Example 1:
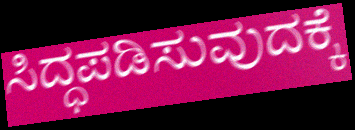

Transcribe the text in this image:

ಸಿದ್ಧಪಡಿಸುವುದಕ್ಕೆ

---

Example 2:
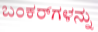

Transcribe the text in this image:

ಬಂಕರ್‌ಗಳನ್ನು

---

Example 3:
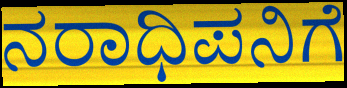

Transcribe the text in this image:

ನರಾಧಿಪನಿಗೆ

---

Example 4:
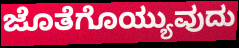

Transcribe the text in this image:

ಜೊತೆಗೊಯ್ಯುವುದು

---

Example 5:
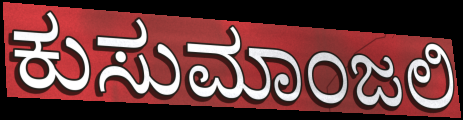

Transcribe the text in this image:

ಕುಸುಮಾಂಜಲಿ